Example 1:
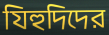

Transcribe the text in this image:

যিহুদিদের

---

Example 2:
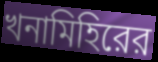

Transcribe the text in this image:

খনামিহিরের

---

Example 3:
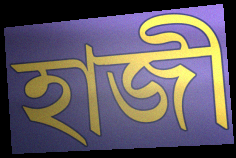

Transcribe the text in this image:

হাজী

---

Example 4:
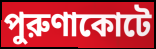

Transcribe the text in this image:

পুরুণাকোটে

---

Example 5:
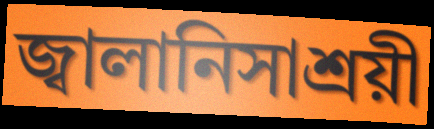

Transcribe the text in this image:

জ্বালানিসাশ্রয়ী